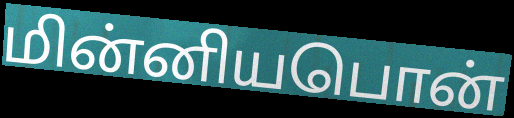
மின்னியபொன்